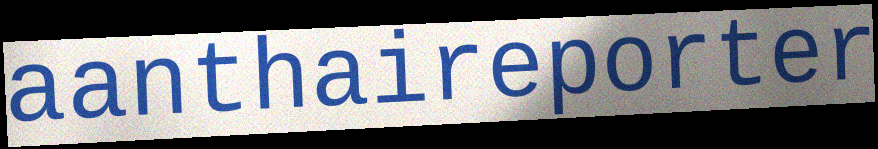
aanthaireporter